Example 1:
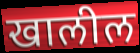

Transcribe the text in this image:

खालील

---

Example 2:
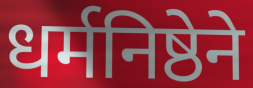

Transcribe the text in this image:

धर्मनिष्ठेने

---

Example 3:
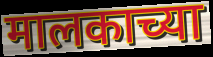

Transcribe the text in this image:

मालकाच्या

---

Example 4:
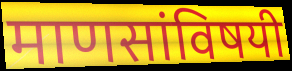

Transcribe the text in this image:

माणसांविषयी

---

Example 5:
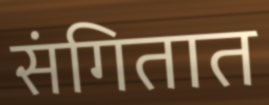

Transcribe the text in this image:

संगितात